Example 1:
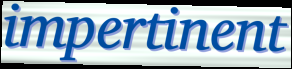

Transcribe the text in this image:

impertinent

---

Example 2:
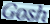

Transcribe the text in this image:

Gosh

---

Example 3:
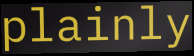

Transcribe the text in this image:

plainly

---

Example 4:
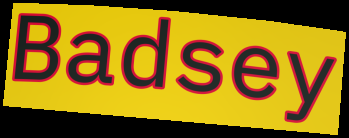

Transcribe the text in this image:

Badsey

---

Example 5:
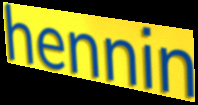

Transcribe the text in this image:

hennin